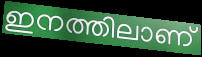
ഇനത്തിലാണ്